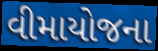
વીમાયોજના